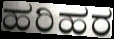
ಹರಿಹರ